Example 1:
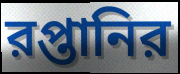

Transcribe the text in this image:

রপ্তানির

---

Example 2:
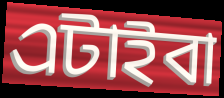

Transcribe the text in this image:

এটাইবা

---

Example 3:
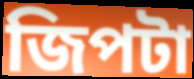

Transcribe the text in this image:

জিপটা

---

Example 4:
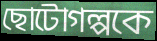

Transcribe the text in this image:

ছোটোগল্পকে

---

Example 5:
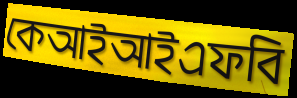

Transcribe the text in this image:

কেআইআইএফবি